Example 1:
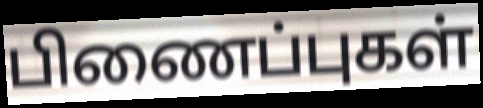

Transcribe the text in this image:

பிணைப்புகள்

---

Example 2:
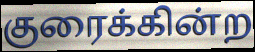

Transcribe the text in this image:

குரைக்கின்ற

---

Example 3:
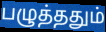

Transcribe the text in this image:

பழுத்ததும்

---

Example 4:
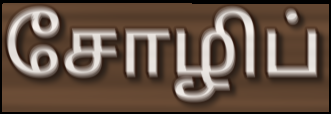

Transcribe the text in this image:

சோழிப்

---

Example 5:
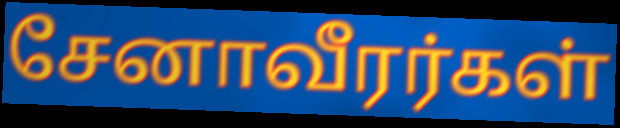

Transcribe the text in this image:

சேனாவீரர்கள்